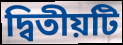
দ্বিতীয়টি